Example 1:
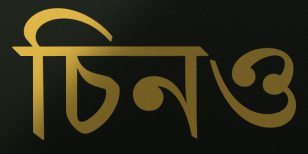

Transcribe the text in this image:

চিনও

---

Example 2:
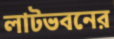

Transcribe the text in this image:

লাটভবনের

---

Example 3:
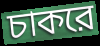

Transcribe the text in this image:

চাকরে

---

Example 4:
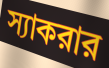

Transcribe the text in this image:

স্যাকরার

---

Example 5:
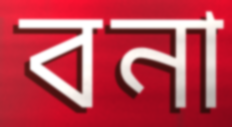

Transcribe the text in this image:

বনা